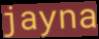
jayna